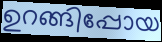
ഉറങ്ങിപ്പോയ